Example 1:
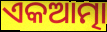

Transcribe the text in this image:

ଏକଆତ୍ମା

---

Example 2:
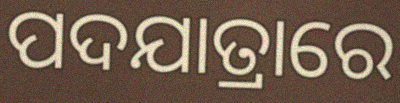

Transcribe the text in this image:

ପଦଯାତ୍ରାରେ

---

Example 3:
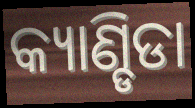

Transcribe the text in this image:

କ୍ୟାଣ୍ଡିଡା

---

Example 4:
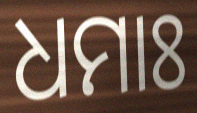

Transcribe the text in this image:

ଧମାଃ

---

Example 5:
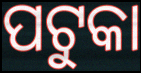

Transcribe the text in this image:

ପଟୁକା